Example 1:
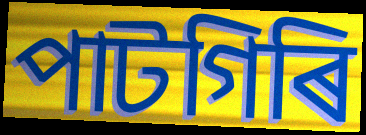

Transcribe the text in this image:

পাটগিৰি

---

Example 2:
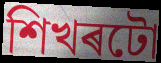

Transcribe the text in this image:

শিখৰটো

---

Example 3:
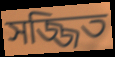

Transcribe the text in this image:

সজ্জিত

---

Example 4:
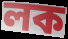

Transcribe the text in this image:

লক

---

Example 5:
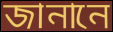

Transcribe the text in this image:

জানানে